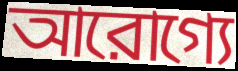
আরোগ্যে